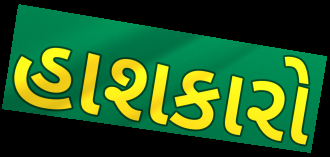
હાશકારો